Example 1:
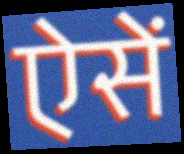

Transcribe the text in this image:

ऐसें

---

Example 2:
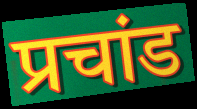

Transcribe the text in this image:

प्रचांड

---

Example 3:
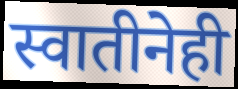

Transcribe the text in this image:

स्वातीनेही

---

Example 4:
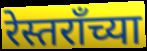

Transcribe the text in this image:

रेस्तरॉंच्या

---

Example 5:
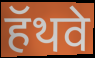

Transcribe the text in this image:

हॅथवे